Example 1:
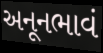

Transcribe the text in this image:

અનૂનભાવં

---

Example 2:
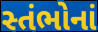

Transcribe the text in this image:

સ્તંભોનાં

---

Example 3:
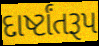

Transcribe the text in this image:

દાર્ષ્ટાંતરૂપ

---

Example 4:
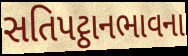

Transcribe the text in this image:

સતિપટ્ઠાનભાવના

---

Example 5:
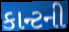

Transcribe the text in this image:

કાન્ટની